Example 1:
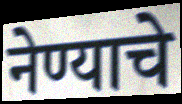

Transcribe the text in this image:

नेण्याचे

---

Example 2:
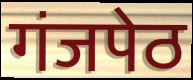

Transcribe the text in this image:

गंजपेठ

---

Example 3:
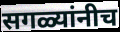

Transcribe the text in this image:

सगळ्यांनीच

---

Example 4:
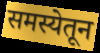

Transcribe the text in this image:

समस्येतून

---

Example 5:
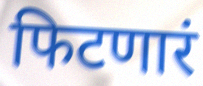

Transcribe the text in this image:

फिटणारं